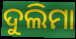
ଦୁଲିମା